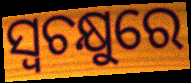
ସ୍ୱଚକ୍ଷୁରେ